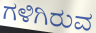
ಗಳಿಗಿರುವ